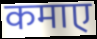
कमाए